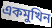
একমুখিন